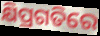
କ୍ଷିପ୍ରଗତିରେ